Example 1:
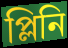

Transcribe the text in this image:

প্লিনি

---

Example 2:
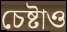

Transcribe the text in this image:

চেষ্টাও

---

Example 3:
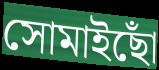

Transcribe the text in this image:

সোমাইছোঁ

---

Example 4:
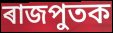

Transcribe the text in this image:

ৰাজপুতক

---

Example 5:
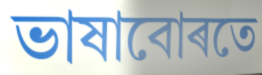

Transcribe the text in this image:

ভাষাবোৰতে